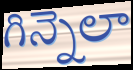
గిన్నెలా